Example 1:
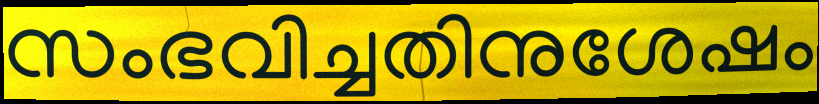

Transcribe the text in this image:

സംഭവിച്ചതിനുശേഷം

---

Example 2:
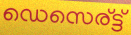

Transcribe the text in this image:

ഡെസെര്ട്ട്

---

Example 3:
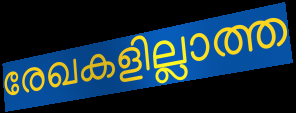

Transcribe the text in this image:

രേഖകളില്ലാത്ത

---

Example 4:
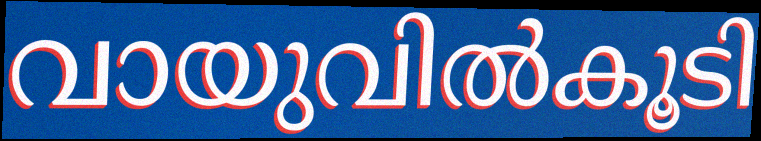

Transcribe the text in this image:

വായുവിൽകൂടി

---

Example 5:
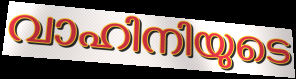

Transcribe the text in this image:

വാഹിനിയുടെ